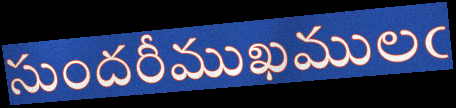
సుందరీముఖములఁ